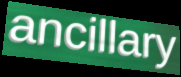
ancillary